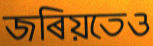
জৰিয়তেও